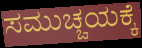
ಸಮುಚ್ಚಯಕ್ಕೆ